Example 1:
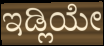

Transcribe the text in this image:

ಇಡ್ಲಿಯೇ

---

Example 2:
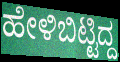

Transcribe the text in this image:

ಹೇಳಿಬಿಟ್ಟಿದ್ದ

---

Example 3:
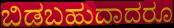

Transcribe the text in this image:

ಬಿಡಬಹುದಾದರೂ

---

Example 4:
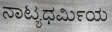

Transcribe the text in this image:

ನಾಟ್ಯಧರ್ಮಿಯ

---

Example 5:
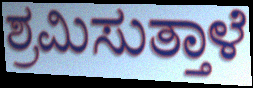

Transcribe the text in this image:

ಶ್ರಮಿಸುತ್ತಾಳೆ